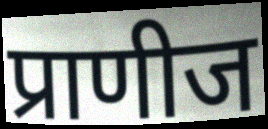
प्राणीज